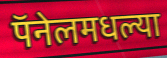
पॅनेलमधल्या